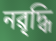
নৱৃদ্ধি